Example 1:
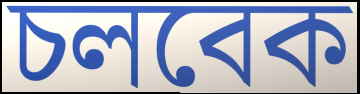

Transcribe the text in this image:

চলবেক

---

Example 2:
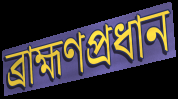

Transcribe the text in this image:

ব্রাহ্মণপ্রধান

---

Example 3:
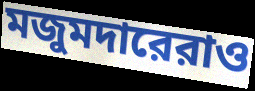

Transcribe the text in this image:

মজুমদারেরাও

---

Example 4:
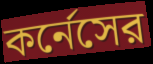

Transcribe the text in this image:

কর্নেসের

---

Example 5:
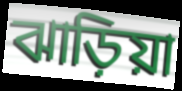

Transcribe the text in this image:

ঝাড়িয়া